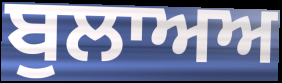
ਬੁਲਾਅਅ